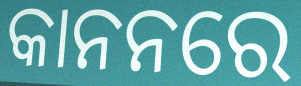
କାନନରେ